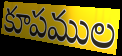
కూపముల